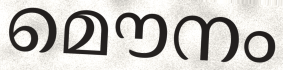
മൌനം